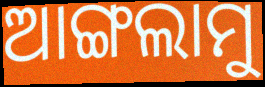
ଆଙ୍ଗଲାମୁ